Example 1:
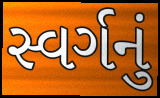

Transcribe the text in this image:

સ્વર્ગનું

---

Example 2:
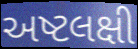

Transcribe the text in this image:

અષ્ટલક્ષી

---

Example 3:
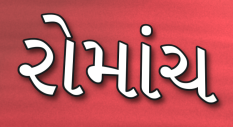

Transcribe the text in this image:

રોમાંચ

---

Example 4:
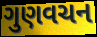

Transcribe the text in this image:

ગુણવચન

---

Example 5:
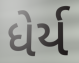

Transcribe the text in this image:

ધેર્ય